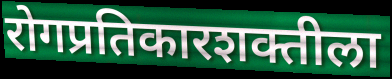
रोगप्रतिकारशक्तीला